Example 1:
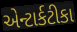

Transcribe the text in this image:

એન્ટાર્કટીકા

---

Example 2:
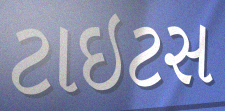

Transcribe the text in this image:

ટાઇટસ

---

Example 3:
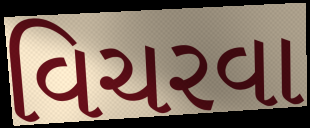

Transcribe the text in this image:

વિચરવા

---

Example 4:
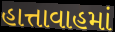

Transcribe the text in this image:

હાત્તાવાહમાં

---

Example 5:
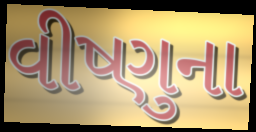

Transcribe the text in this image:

વીષ્ણુના